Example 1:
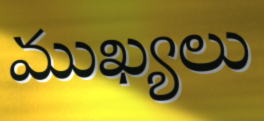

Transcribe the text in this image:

ముఖ్యలు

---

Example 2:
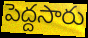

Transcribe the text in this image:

పెద్దసారు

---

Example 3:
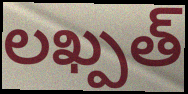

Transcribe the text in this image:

లఖ్పత్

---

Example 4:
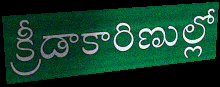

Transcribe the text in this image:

క్రీడాకారిణుల్లో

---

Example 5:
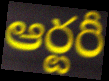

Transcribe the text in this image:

ఆర్టరీ